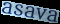
asava